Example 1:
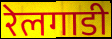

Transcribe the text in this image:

रेलगाडी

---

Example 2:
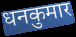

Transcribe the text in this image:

धनकुमार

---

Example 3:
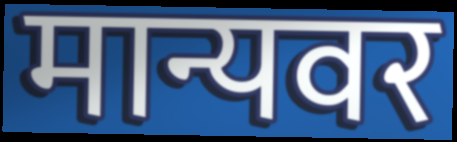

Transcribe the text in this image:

मान्यवर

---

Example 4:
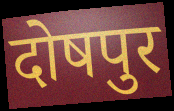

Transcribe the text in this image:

दोषपुर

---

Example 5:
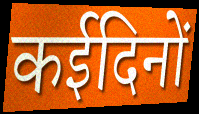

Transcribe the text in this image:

कईदिनों